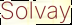
Solvay